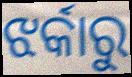
ଝର୍କାରୁ